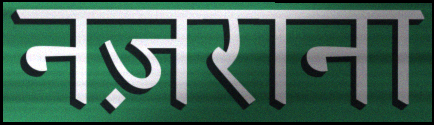
नज़राना